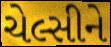
ચેલ્સીને